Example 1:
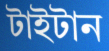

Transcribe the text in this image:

টাইটান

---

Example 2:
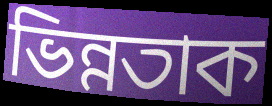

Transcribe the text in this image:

ভিন্নতাক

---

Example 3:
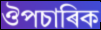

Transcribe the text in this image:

ঔপচাৰিক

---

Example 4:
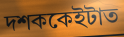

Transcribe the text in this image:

দশককেইটাত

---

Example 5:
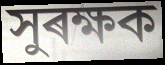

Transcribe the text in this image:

সুৰক্ষক